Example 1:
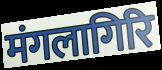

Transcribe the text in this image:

मंगलागिरि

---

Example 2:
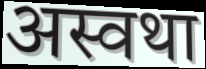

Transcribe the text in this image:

अस्वथा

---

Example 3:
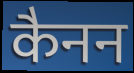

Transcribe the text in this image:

कैनन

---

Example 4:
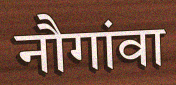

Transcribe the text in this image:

नौगांवा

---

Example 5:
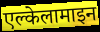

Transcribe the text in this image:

एल्केलामाइन